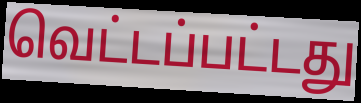
வெட்டப்பட்டது